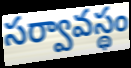
సర్వావస్థం